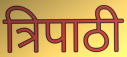
त्रिपाठी